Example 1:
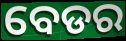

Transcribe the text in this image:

ବେଡର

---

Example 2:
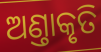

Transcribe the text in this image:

ଅଣ୍ତାକୃତି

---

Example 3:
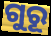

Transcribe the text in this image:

ଗୁରୂ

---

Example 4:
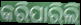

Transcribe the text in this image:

କରିପାରିଲି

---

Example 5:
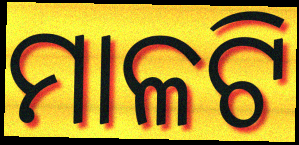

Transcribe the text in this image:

ମାଳଟି